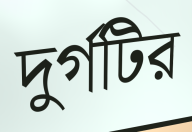
দুর্গটির